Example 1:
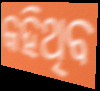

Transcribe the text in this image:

କହିଥିବ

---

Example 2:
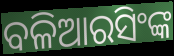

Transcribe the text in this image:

ବଳିଆରସିଂଙ୍କ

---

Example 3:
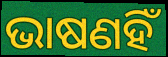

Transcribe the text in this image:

ଭାଷଣହିଁ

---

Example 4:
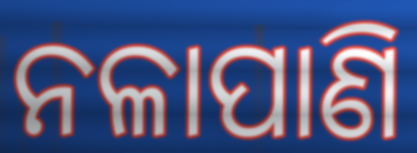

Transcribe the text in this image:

ନଳାପାଣି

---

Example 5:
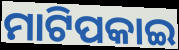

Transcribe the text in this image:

ମାଟିପକାଇ